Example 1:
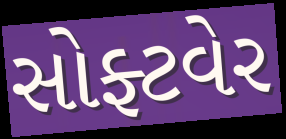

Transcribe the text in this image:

સોફ્ટવેર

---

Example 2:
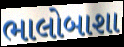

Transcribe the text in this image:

ભાલોબાશા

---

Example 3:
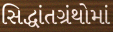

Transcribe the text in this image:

સિદ્ધાંતગ્રંથોમાં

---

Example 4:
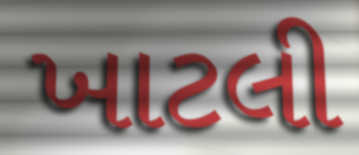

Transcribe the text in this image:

ખાટલી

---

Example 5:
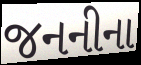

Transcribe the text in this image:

જનનીના